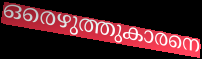
ഒരെഴുത്തുകാരനെ